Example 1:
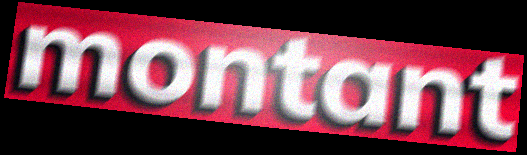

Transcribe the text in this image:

montant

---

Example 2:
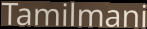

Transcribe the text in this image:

Tamilmani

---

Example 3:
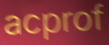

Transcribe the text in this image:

acprof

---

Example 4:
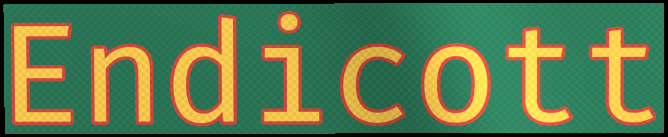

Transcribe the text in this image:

Endicott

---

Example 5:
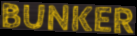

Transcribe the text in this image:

BUNKER